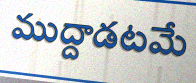
ముద్దాడటమే